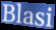
Blasi